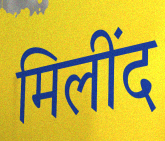
मिलींद